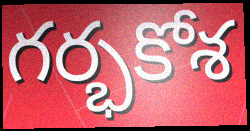
గర్భకోశ